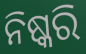
ନିଷ୍କରି